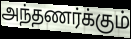
அந்தணர்க்கும்